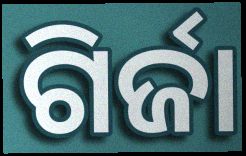
ଗିର୍ଜା